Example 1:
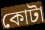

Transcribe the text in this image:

কোটা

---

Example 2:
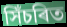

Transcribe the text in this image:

সিঁচৰিত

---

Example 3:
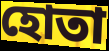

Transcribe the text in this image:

হোতা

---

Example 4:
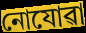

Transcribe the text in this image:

নোযোৱা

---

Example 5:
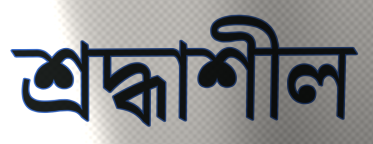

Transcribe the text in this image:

শ্ৰদ্ধাশীল